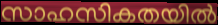
സാഹസികതയിൽ